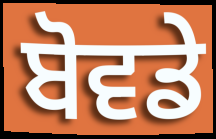
ਬੋਵਡੇ